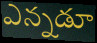
ఎన్నడూ